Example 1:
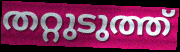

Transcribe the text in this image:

തറ്റുടുത്ത്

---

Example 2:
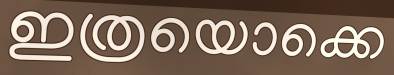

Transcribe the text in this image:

ഇത്രയൊക്കെ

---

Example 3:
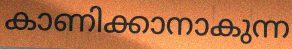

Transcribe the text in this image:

കാണിക്കാനാകുന്ന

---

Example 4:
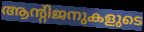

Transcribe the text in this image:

ആന്റിജനുകളുടെ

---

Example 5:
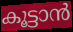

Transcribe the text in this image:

കൂട്ടാൻ